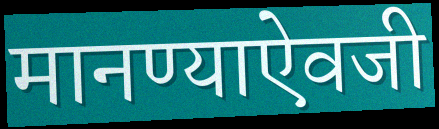
मानण्याऐवजी